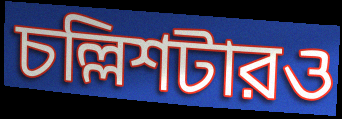
চল্লিশটারও